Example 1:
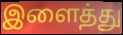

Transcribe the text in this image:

இளைத்து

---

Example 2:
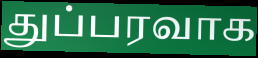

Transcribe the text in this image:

துப்பரவாக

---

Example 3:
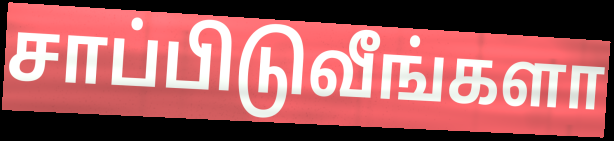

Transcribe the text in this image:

சாப்பிடுவீங்களா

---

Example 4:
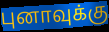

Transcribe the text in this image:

புனாவுக்கு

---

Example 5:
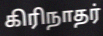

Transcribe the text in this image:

கிரிநாதர்